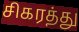
சிகரத்து